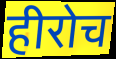
हीरोच